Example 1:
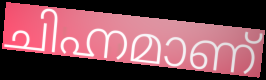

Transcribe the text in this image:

ചിഹ്നമാണ്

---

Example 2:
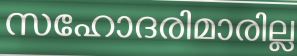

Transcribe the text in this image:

സഹോദരിമാരില്ല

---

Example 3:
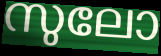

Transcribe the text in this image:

സുലോ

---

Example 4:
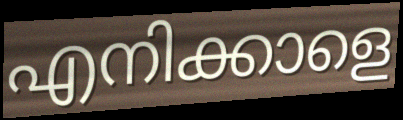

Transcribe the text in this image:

എനിക്കാളെ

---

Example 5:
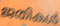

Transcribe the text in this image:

ജതികൾ